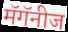
मॅगॅनीज